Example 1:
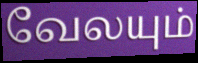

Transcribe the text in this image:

வேலயும்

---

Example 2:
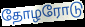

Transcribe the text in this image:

தோழரோடு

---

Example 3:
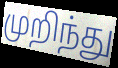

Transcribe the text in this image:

முறிந்து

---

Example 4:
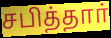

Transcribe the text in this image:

சபித்தார்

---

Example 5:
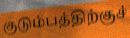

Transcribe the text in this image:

குடும்பத்திற்குச்